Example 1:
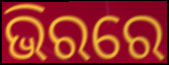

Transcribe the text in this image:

ଭିରରେ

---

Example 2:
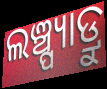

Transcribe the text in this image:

ଲଞ୍ଚ୍ପ୍ୟାଡ୍ରୁ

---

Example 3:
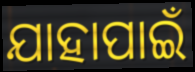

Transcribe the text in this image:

ଯାହାପାଇଁ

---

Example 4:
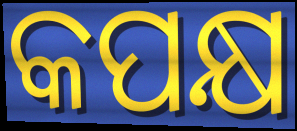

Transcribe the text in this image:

କପକ୍ଷ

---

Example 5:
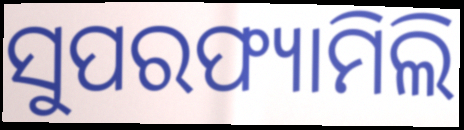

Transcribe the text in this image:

ସୁପରଫ୍ୟାମିଲି